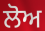
ਲੋਅ